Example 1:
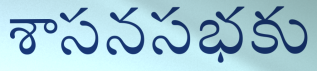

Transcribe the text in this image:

శాసనసభకు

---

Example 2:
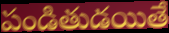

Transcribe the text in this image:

పండితుడయితే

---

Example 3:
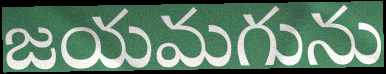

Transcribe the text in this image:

జయమగును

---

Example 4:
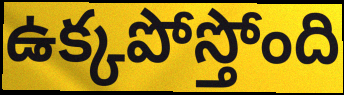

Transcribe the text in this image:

ఉక్కపోస్తోంది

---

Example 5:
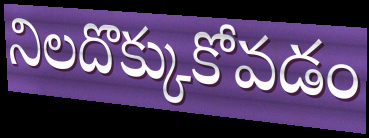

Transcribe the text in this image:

నిలదొక్కుకోవడం